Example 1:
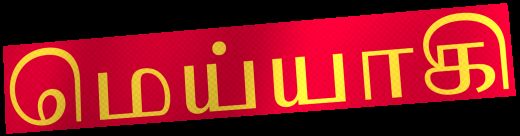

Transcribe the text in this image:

மெய்யாகி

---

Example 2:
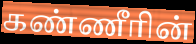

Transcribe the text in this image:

கண்ணீரின்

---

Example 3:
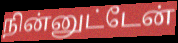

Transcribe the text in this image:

நின்னுட்டேன்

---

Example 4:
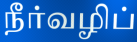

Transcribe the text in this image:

நீர்வழிப்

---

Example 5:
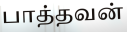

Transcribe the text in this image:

பாத்தவன்